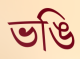
ভঙি